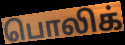
பொலிக்